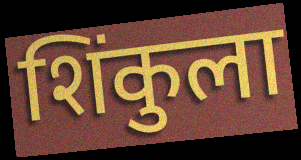
शिंकुला